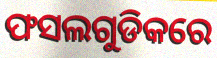
ଫସଲଗୁଡିକରେ